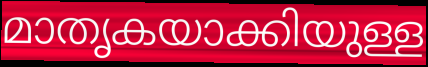
മാതൃകയാക്കിയുള്ള